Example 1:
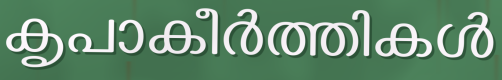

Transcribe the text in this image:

കൃപാകീർത്തികൾ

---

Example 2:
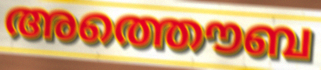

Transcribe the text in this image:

അത്തൌബ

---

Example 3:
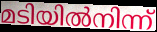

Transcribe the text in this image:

മടിയിൽനിന്ന്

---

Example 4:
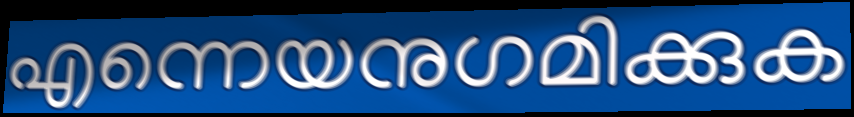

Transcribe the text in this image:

എന്നെയനുഗമിക്കുക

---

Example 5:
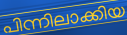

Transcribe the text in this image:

പിന്നിലാക്കിയ